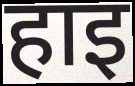
हाइ